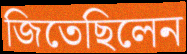
জিতেছিলেন